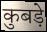
कुबड़े